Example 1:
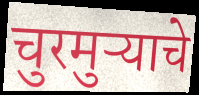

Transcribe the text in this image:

चुरमुऱ्याचे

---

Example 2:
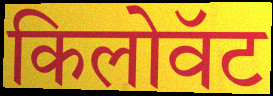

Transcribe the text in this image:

किलोवॅट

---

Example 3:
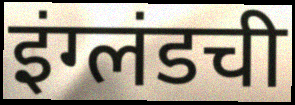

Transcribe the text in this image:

इंग्लंडची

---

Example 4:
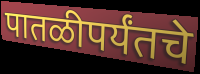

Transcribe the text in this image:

पातळीपर्यंतचे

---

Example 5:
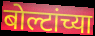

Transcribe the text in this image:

बोल्टांच्या